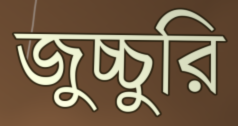
জুচ্চুরি